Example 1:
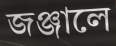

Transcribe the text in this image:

জঞ্জালে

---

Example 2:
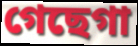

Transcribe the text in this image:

গেছেগা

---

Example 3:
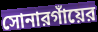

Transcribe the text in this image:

সোনারগাঁয়ের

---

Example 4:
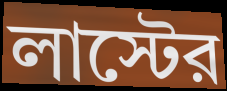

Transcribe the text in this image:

লাস্টের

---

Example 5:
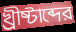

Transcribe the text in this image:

খ্রীষ্টাব্দের